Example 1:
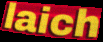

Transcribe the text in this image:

laich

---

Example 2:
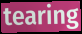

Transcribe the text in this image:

tearing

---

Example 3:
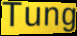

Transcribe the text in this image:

Tung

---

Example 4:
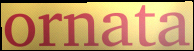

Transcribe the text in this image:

ornata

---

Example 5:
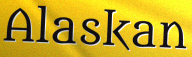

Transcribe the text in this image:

Alaskan